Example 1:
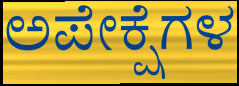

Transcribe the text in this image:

ಅಪೇಕ್ಷೆಗಳ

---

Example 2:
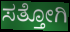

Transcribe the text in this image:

ಸತ್ತೋಗಿ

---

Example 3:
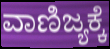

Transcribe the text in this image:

ವಾಣಿಜ್ಯಕ್ಕೆ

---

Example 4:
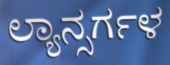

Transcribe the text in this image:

ಲ್ಯಾನ್ಸರ್ಗಳ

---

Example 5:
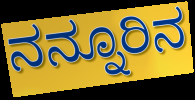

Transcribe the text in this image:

ನನ್ನೂರಿನ